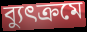
ব্যুৎক্রমে